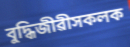
বুদ্ধিজীৱীসকলক